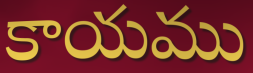
కాయము